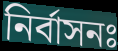
নির্বাসনঃ